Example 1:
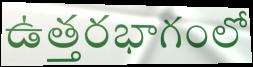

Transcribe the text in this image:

ఉత్తరభాగంలో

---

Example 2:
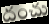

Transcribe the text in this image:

దంచు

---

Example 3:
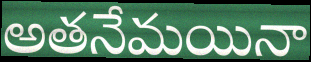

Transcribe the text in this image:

అతనేమయినా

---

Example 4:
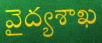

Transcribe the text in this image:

వైద్యశాఖ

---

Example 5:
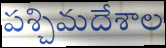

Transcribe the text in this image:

పశ్చిమదేశాల